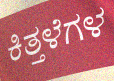
ಕಿತ್ತಳೆಗಳ